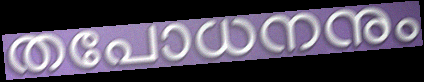
തപോധനനും